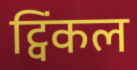
ट्विंकल